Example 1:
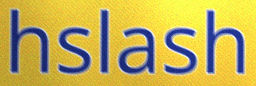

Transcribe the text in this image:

hslash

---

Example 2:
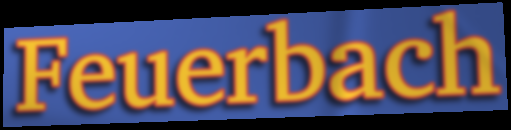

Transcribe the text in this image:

Feuerbach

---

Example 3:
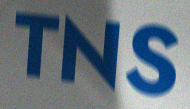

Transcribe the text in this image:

TNS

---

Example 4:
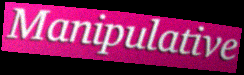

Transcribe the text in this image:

Manipulative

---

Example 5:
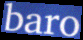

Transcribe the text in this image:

baro